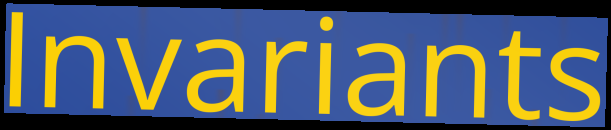
Invariants